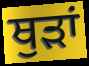
ਥੁੜਾਂ